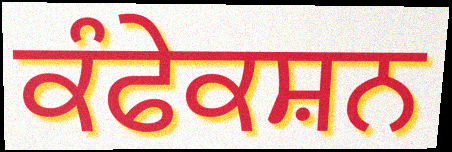
ਕੰਫੇਕਸ਼ਨ